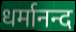
धर्मानन्द